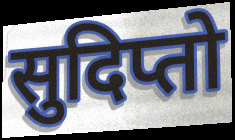
सुदिप्तो